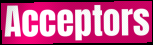
Acceptors